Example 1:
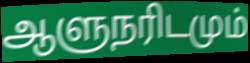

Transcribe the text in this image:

ஆளுநரிடமும்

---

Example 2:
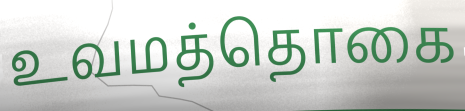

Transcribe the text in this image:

உவமத்தொகை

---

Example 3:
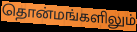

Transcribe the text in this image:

தொன்மங்களிலும்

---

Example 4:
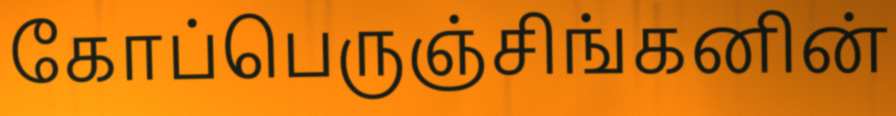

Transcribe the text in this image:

கோப்பெருஞ்சிங்கனின்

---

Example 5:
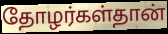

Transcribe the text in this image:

தோழர்கள்தான்